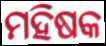
ମହିଷକ